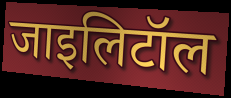
जाइलिटॉल